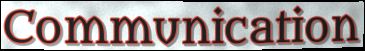
Communication